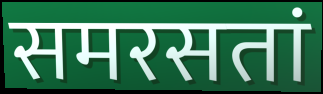
समरसतां